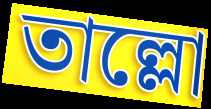
তাল্লো